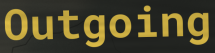
Outgoing